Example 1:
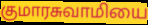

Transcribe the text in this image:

குமாரசுவாமியை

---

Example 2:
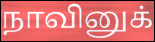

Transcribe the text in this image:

நாவினுக்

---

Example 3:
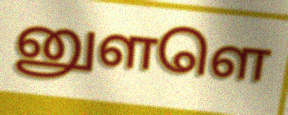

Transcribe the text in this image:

னுளளெ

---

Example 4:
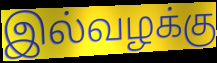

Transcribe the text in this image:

இல்வழக்கு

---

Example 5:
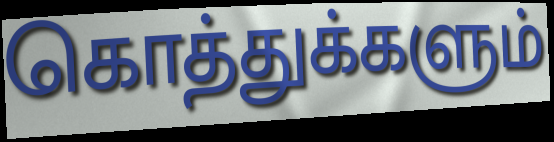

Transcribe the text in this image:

கொத்துக்களும்